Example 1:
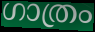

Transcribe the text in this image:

ഗാത്രം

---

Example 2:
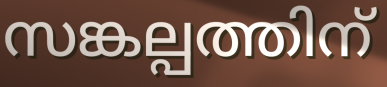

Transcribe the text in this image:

സങ്കല്പത്തിന്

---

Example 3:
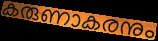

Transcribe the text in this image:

കരുണാകരനും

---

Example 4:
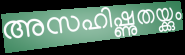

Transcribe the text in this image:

അസഹിഷ്ണുതയ്ക്കും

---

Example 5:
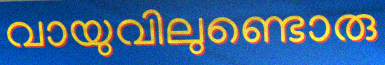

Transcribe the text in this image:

വായുവിലുണ്ടൊരു